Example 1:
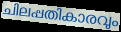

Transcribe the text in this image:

ചിലപ്പതികാരവും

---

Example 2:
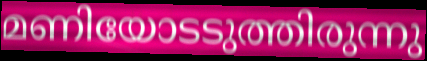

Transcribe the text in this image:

മണിയോടടുത്തിരുന്നു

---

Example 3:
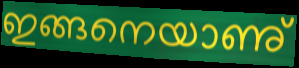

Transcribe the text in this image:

ഇങ്ങനെയാണു്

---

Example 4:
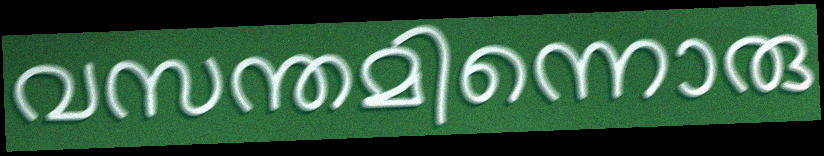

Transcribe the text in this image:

വസന്തമിന്നൊരു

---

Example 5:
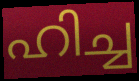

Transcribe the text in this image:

ഹിച്ച